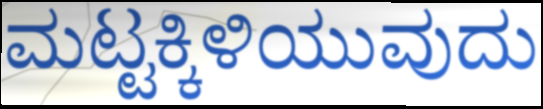
ಮಟ್ಟಕ್ಕಿಳಿಯುವುದು